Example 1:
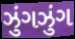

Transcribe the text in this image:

ઝુંગઝુંગ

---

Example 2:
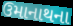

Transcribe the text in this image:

ઉમાનાથના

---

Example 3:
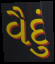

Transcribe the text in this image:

વૈદું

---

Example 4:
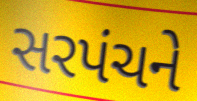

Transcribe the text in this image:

સરપંચને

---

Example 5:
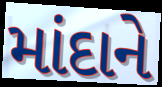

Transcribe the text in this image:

માંદાને